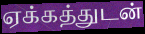
ஏக்கத்துடன்